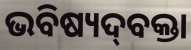
ଭବିଷ୍ୟଦ୍‌ବକ୍ତା